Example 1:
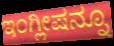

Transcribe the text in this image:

ಇಂಗ್ಲೀಷನ್ನೂ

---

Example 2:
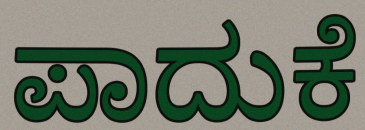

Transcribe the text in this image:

ಪಾದುಕೆ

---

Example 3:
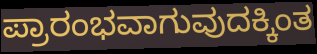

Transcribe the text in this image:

ಪ್ರಾರಂಭವಾಗುವುದಕ್ಕಿಂತ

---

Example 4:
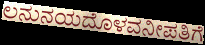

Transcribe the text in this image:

ಲನುನಯದೊಳವನೀಪತಿಗೆ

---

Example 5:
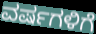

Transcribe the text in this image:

ವರ್ಷಗಳಿಗೆ